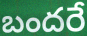
బందరే